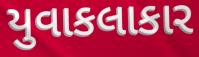
યુવાકલાકાર